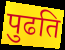
पुढति